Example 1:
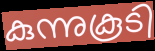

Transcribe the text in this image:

കുന്നുകൂടി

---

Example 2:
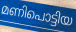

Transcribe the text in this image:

മണിപൊട്ടിയ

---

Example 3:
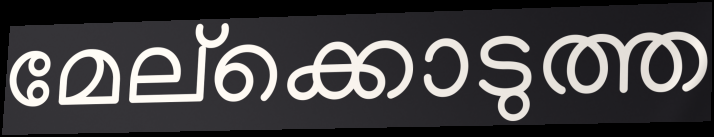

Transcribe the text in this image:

മേല്ക്കൊടുത്ത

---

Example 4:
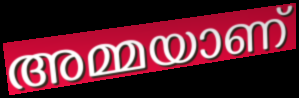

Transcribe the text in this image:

അമ്മയാണ്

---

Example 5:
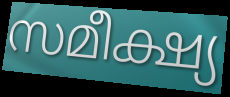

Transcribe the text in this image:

സമീക്ഷ്യ